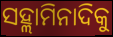
ସହ୍ଲାମିନାଦିକୁ